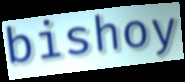
bishoy